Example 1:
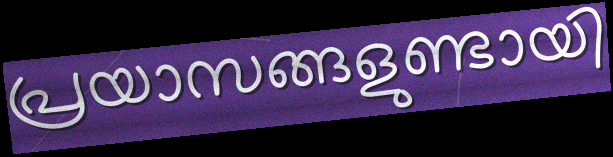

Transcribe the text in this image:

പ്രയാസങ്ങളുണ്ടായി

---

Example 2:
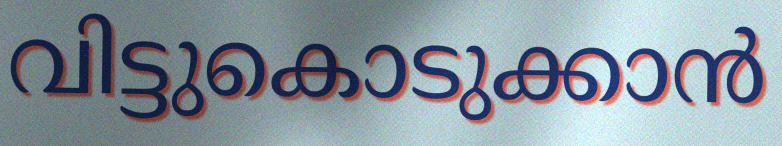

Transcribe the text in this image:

വിട്ടുകൊടുക്കാൻ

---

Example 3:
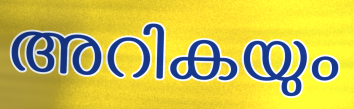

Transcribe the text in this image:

അറികയും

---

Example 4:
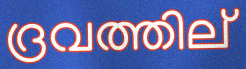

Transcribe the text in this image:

ദ്രവത്തില്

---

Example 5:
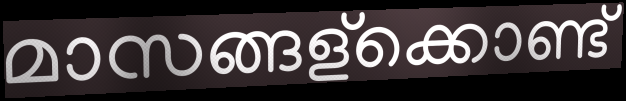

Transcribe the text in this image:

മാസങ്ങള്ക്കൊണ്ട്